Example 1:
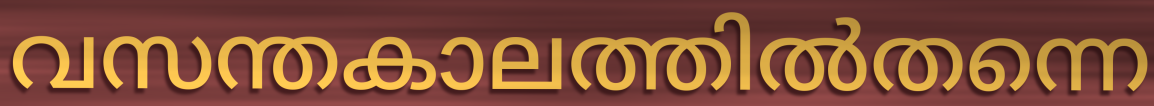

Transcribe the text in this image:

വസന്തകാലത്തിൽതന്നെ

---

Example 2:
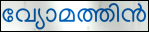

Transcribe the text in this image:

വ്യോമത്തിൻ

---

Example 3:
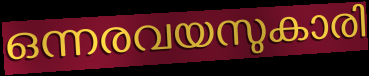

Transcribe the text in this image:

ഒന്നരവയസുകാരി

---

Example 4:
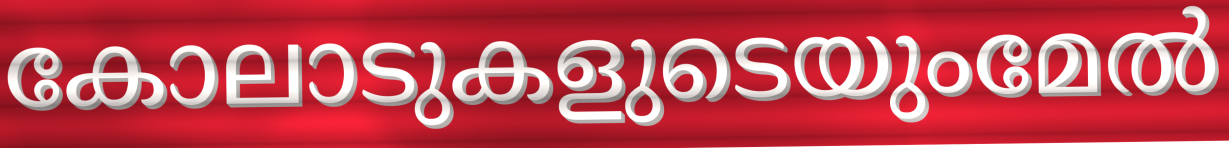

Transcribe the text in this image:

കോലാടുകളുടെയുംമേൽ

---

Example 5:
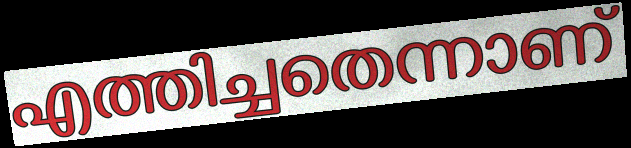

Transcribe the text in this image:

എത്തിച്ചതെന്നാണ്